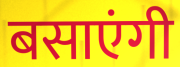
बसाएंगी